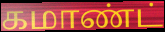
கமாண்ட்